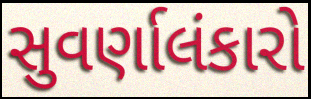
સુવર્ણાલંકારો